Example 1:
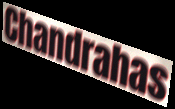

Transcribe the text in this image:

Chandrahas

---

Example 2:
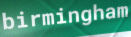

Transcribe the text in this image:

birmingham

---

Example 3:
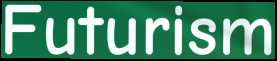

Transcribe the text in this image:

Futurism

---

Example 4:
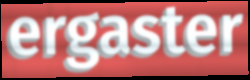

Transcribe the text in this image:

ergaster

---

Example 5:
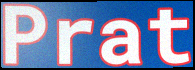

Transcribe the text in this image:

Prat